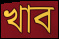
খাব